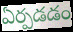
ఏర్పడడం